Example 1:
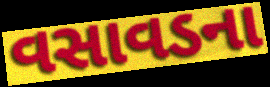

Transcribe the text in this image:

વસાવડના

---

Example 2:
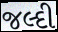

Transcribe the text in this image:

જલ્દી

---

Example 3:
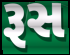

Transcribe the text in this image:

રૂસ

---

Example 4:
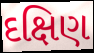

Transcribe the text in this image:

દક્ષિણ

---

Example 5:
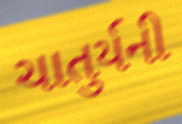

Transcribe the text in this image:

ચાતુર્યની